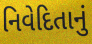
નિવેદિતાનું